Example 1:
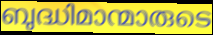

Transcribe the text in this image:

ബുദ്ധിമാന്മാരുടെ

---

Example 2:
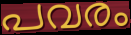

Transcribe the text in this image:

പവരം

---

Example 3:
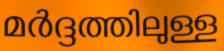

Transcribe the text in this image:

മർദ്ദത്തിലുള്ള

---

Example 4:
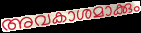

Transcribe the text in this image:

അവകാശമാക്കും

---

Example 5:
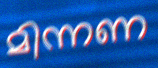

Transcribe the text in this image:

മിന്നണ